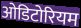
ओडिटोरियम